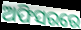
ଅଫିସରରେ